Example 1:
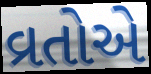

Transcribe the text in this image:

વ્રતોએ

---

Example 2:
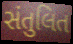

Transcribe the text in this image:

સંતુલિત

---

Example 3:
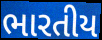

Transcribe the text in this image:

ભારતીય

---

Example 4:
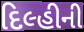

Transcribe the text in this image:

દિલ્હીની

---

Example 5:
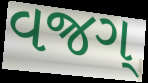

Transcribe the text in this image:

વજ્રગ્